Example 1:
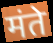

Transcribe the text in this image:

मंते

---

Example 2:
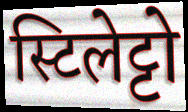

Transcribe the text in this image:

स्टिलेट्टो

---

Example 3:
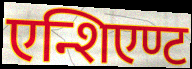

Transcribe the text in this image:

एन्शिएण्ट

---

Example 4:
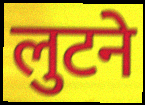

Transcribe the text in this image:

लुटने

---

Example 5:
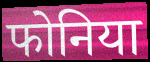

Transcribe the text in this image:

फोनिया